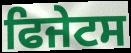
ਫਿਜੇਟਸ